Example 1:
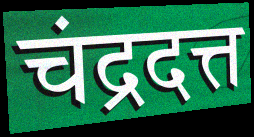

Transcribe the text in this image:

चंद्रदत्त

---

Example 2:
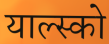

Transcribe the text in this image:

याल्स्को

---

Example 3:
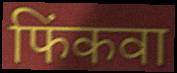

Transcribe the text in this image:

फिंकवा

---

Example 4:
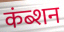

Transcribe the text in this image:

कंब्शन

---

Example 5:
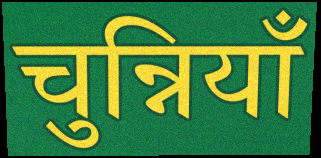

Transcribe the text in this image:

चुन्नियाँ